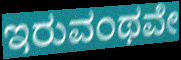
ಇರುವಂಥವೇ